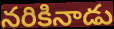
నరికినాడు